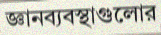
জ্ঞানব্যবস্থাগুলোর